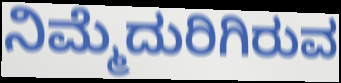
ನಿಮ್ಮೆದುರಿಗಿರುವ